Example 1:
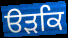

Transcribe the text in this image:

ੳੜਕਿ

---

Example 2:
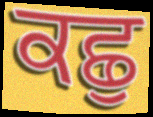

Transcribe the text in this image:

ਕਛੁ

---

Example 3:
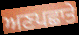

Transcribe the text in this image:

ਅਣਪਛਾਤੇ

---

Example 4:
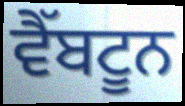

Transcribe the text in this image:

ਵੈੱਬਟੂਨ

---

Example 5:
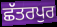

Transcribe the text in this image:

ਛੱਤਰਪੁਰ